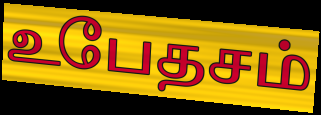
உபேதசம்